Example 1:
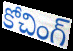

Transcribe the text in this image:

కోచింగ్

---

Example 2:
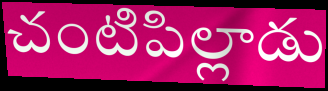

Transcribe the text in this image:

చంటిపిల్లాడు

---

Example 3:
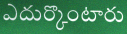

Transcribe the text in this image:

ఎదుర్కొంటారు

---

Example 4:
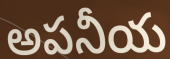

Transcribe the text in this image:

అపనీయ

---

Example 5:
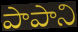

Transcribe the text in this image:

పాపాని